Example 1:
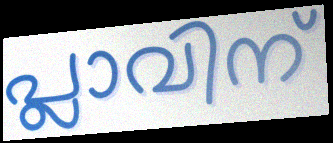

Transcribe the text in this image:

പ്ലാവിന്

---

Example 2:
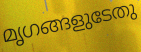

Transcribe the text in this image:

മൃഗങ്ങളുടേതു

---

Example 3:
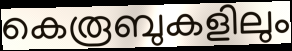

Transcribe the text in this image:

കെരൂബുകളിലും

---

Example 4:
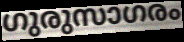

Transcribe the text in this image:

ഗുരുസാഗരം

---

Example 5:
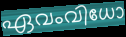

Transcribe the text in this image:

ഏവംവിധോ